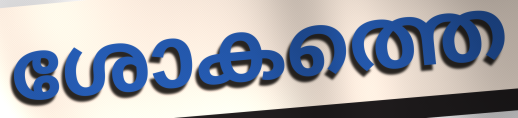
ശോകത്തെ